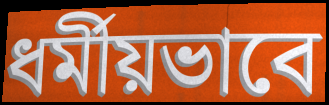
ধর্মীয়ভাবে